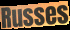
Russes